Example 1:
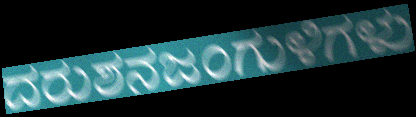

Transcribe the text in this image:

ದರುಶನಜಂಗುಳಿಗಳು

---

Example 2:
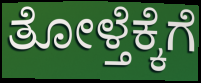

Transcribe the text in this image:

ತೋಳ್ತೆಕ್ಕೆಗೆ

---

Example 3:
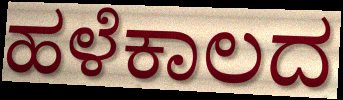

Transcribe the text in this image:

ಹಳೆಕಾಲದ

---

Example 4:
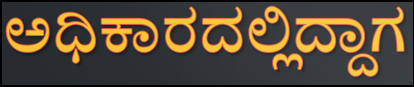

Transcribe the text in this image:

ಅಧಿಕಾರದಲ್ಲಿದ್ದಾಗ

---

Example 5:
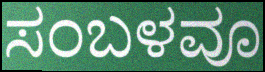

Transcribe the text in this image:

ಸಂಬಳವೂ